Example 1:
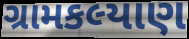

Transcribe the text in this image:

ગ્રામકલ્યાણ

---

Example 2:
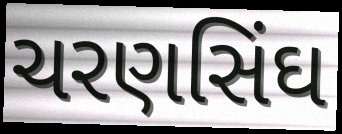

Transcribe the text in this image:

ચરણસિંઘ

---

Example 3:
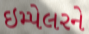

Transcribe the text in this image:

ઇમ્પેલરને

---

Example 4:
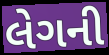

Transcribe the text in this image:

લેગની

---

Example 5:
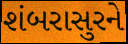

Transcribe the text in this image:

શંબરાસુરને